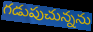
గడుపుచున్నను